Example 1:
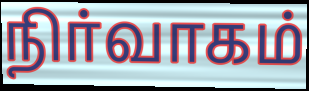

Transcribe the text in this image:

நிர்வாகம்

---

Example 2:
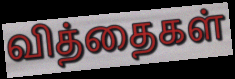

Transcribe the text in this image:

வித்தைகள்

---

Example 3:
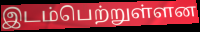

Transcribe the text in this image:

இடம்பெற்றுள்ளன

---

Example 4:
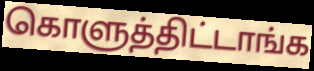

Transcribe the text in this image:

கொளுத்திட்டாங்க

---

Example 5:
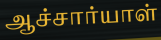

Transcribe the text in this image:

ஆச்சார்யாள்